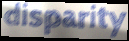
disparity